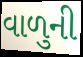
વાળુની